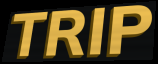
TRIP